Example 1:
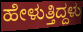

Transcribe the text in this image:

ಹೇಳುತ್ತಿದ್ದಳು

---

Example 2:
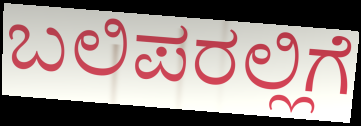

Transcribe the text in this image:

ಬಲಿಪರಲ್ಲಿಗೆ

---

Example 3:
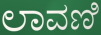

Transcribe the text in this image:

ಲಾವಣಿ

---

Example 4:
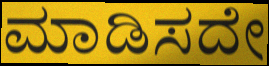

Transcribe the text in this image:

ಮಾಡಿಸದೇ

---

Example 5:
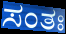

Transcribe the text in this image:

ಸಂತಃ